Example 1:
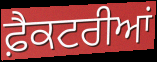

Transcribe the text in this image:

ਫ਼ੈਕਟਰੀਆਂ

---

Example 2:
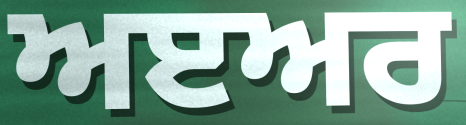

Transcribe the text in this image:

ਅੲਅਰ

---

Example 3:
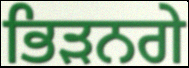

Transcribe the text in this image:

ਭਿੜਨਗੇ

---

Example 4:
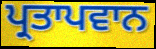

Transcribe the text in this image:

ਪ੍ਰਤਾਪਵਾਨ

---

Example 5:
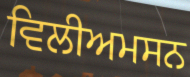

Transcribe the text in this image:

ਵਿਲੀਅਮਸਨ